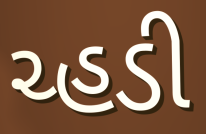
ચ્હડી